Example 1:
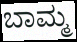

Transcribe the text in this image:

ಬಾಮ್ಮ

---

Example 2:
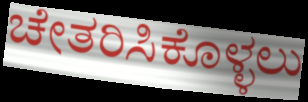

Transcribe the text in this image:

ಚೇತರಿಸಿಕೊಳ್ಳಲು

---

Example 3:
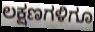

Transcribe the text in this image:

ಲಕ್ಷಣಗಳಿಗೂ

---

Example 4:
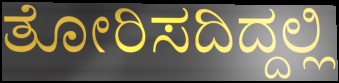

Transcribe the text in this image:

ತೋರಿಸದಿದ್ದಲ್ಲಿ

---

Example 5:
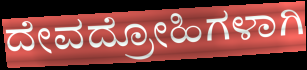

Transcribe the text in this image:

ದೇವದ್ರೋಹಿಗಳಾಗಿ